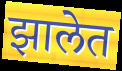
झालेत